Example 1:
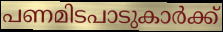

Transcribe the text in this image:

പണമിടപാടുകാർക്ക്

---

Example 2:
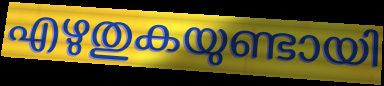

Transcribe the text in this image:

എഴുതുകയുണ്ടായി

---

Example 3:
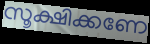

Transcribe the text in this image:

സൂക്ഷിക്കണേ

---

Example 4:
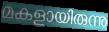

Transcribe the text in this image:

മകളായിരുന്നു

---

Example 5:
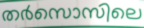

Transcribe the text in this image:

തർസൊസിലെ